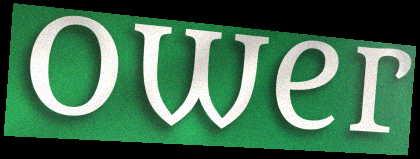
ower